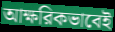
আক্ষরিকভাবেই